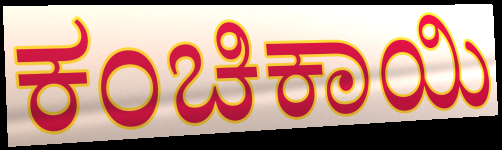
ಕಂಚಿಕಾಯಿ